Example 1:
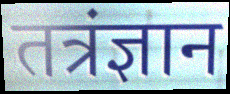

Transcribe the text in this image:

तत्रंज्ञान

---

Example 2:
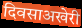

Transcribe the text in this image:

दिवसाअखेरी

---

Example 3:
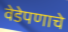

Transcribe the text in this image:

वेडेपणाचे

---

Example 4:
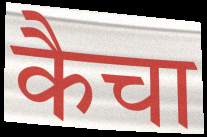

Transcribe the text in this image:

कैचा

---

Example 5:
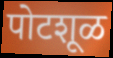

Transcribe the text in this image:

पोटशूळ